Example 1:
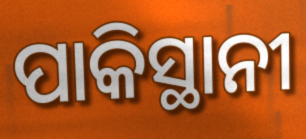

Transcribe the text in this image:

ପାକିସ୍ଥାନୀ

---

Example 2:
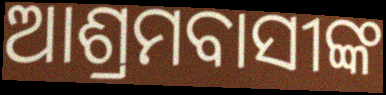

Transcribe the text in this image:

ଆଶ୍ରମବାସୀଙ୍କ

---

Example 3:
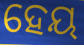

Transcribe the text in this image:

ହେୟ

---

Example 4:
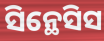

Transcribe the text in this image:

ସିନ୍ଥେସିସ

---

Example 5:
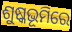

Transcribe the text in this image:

ଶୁଷ୍କଭୂମିରେ